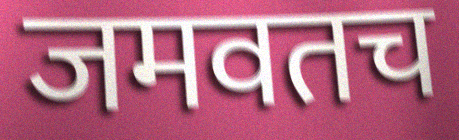
जमवतच